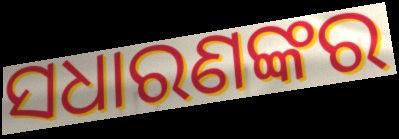
ସଧାରଣଙ୍କର